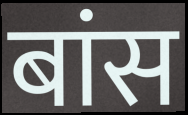
बांस